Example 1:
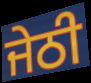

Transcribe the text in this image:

ਜੇਠੀ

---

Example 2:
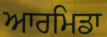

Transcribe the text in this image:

ਆਰਮਿਡਾ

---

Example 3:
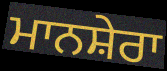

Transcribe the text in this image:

ਮਾਨਸ਼ੇਰਾ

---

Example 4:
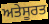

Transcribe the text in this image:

ਅਤੇਸੂਰਤ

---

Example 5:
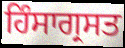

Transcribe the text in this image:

ਹਿੰਸਾਗ੍ਰਸਤ